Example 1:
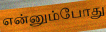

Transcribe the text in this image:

என்னும்போது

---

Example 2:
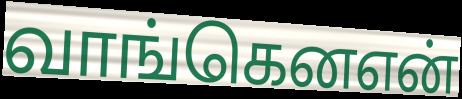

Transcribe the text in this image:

வாங்கெனஎன்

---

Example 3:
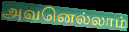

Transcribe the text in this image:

அவனெல்லாம்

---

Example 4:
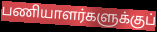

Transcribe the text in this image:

பணியாளர்களுக்குப்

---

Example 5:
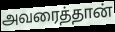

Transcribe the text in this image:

அவரைத்தான்